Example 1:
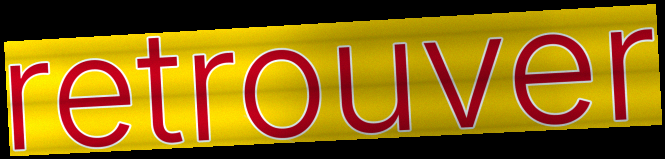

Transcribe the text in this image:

retrouver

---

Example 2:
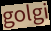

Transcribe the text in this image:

golgi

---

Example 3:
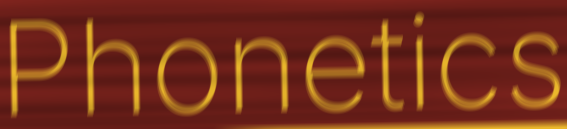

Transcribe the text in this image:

Phonetics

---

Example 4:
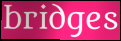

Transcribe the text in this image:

bridges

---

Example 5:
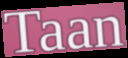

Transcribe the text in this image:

Taan